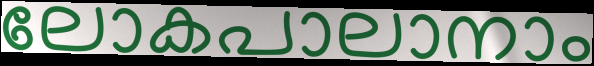
ലോകപാലാനാം